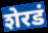
शेरडं